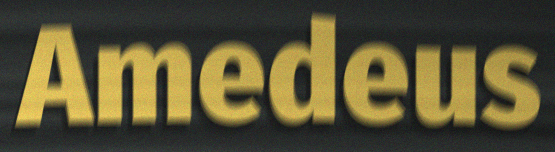
Amedeus